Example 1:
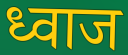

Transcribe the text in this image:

ध्वाज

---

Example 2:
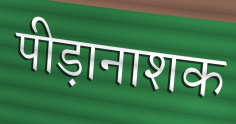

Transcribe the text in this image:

पीड़ानाशक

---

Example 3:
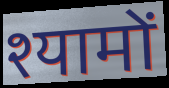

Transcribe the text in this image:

श्यामों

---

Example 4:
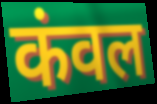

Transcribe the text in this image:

कंवल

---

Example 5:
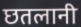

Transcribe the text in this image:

छतलानी